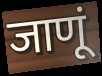
जाणूं